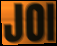
JOI